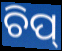
ଚିପ୍